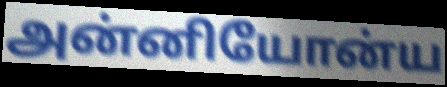
அன்னியோன்ய